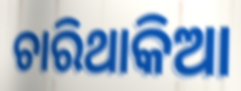
ଚାରିଥାକିଆ